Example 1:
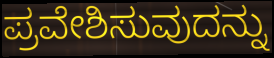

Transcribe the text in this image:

ಪ್ರವೇಶಿಸುವುದನ್ನು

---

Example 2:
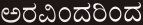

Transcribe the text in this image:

ಅರವಿಂದರಿಂದ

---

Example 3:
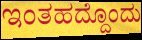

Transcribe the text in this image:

ಇಂತಹದ್ದೊಂದು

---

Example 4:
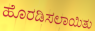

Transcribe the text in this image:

ಹೊರಡಿಸಲಾಯಿತು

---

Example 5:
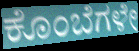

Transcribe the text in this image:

ಕೊಂಬೆಗಳೇ